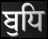
ਬੁਧਿ